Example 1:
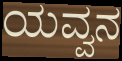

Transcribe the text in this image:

ಯವ್ವನ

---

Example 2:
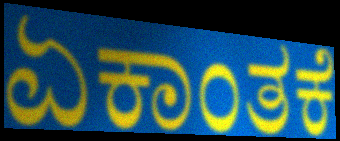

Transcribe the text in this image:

ಏಕಾಂತಕೆ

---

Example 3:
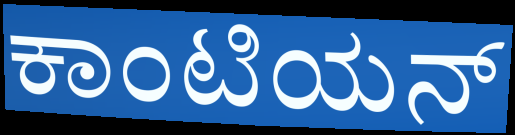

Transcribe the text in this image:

ಕಾಂಟಿಯನ್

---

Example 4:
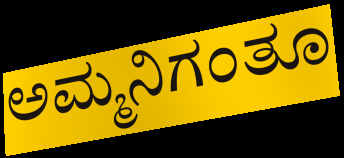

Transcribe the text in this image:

ಅಮ್ಮನಿಗಂತೂ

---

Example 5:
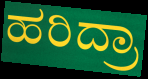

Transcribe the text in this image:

ಹರಿದ್ರಾ